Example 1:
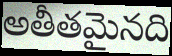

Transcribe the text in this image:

అతీతమైనది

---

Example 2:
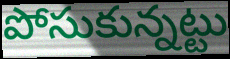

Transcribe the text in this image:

పోసుకున్నట్టు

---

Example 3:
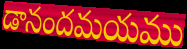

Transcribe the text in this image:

డానందమయము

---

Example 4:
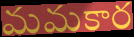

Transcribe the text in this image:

మమకార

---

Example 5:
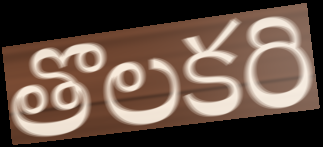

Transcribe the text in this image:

తొలకరి